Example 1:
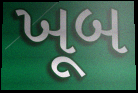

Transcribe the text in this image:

ખૂબ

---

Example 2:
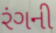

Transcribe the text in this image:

રંગની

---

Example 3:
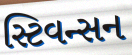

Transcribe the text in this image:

સ્ટિવન્સન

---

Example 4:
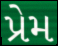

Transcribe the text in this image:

પ્રેમ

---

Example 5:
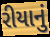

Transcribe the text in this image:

રીયાનું